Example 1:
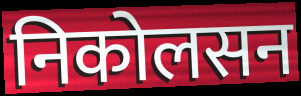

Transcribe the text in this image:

निकोलसन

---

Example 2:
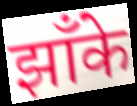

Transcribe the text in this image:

झाँके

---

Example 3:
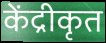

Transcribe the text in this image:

केंद्रीकृत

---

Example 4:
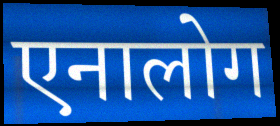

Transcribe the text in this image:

एनालोग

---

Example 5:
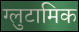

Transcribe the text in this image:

ग्लुटामिक